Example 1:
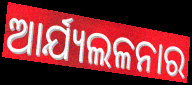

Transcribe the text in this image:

ଆର୍ଯ୍ୟଲଳନାର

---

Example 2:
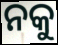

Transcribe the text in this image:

ନକୁ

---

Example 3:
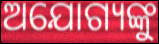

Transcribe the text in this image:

ଅଯୋଗ୍ୟଙ୍କୁ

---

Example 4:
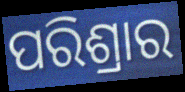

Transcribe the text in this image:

ପରିଶ୍ରାର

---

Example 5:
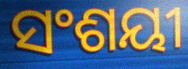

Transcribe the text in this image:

ସଂଶୟୀ